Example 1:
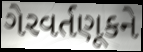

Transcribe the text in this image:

ગેરવર્તણૂકને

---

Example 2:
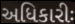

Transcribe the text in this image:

અધિકારીઃ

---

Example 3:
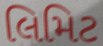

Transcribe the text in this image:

લિમિટ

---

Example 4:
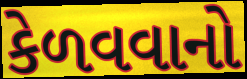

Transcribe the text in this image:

કેળવવાનો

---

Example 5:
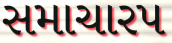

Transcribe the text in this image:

સમાચારપ